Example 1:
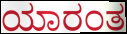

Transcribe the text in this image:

ಯಾರಂತ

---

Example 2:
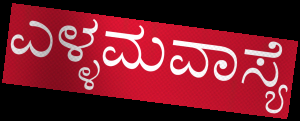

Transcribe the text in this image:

ಎಳ್ಳಮವಾಸ್ಯೆ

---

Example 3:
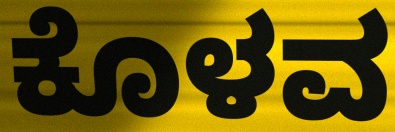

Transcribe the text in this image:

ಕೊಳವ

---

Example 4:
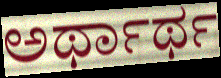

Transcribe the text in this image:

ಅರ್ಥಾರ್ಥ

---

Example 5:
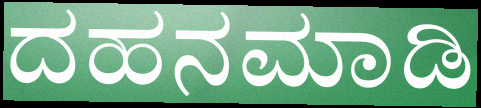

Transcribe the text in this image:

ದಹನಮಾಡಿ